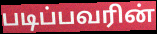
படிப்பவரின்